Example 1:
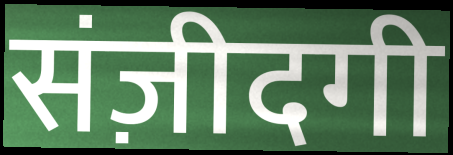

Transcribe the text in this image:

संज़ीदगी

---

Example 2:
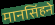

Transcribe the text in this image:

मानसिंहने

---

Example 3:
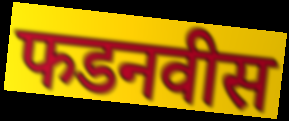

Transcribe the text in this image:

फडनवीस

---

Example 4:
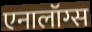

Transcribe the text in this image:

एनालॉग्स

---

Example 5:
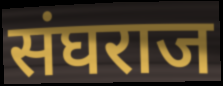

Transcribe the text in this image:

संघराज